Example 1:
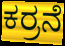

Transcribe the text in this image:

ಕರ್ರನೆ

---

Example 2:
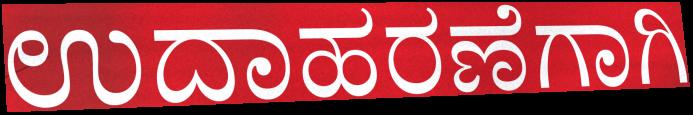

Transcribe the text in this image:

ಉದಾಹರಣೆಗಾಗಿ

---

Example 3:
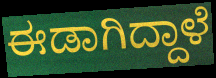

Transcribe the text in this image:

ಈಡಾಗಿದ್ದಾಳೆ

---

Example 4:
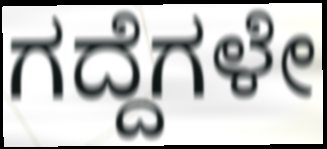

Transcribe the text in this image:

ಗದ್ದೆಗಳೇ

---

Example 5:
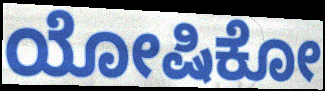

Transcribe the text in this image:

ಯೋಷಿಕೋ